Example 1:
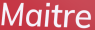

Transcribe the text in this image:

Maitre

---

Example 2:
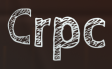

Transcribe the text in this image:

Crpc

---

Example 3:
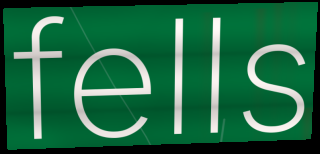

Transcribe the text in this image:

fells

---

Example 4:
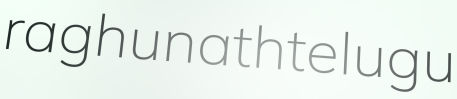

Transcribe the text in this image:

raghunathtelugu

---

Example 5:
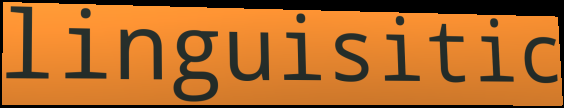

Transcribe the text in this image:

linguisitic